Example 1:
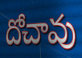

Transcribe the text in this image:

దోచావు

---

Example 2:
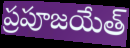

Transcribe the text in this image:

ప్రపూజయేత్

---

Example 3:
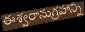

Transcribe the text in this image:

ఈశ్వరానుగ్రహాన్ని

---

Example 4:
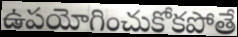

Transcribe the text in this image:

ఉపయోగించుకోకపోతే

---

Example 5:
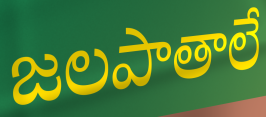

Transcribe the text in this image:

జలపాతాలే